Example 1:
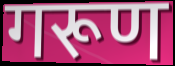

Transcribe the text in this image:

गरूण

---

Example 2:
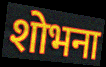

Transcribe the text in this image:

शोभना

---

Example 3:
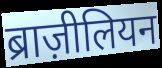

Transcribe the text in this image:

ब्राज़ीलियन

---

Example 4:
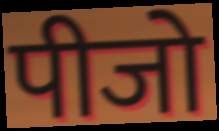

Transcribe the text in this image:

पीजो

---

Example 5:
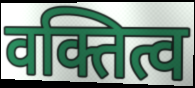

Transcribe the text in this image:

वक्तित्व